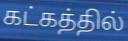
கட்கத்தில்